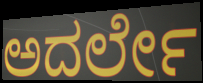
ಅದರ್ಲೇ